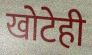
खोटेही